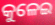
କୁଳେଇ